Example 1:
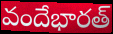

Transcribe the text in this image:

వందేభారత్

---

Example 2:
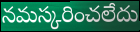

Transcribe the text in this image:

నమస్కరించలేదు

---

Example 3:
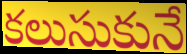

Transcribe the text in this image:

కలుసుకునే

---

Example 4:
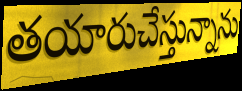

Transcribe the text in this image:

తయారుచేస్తున్నాను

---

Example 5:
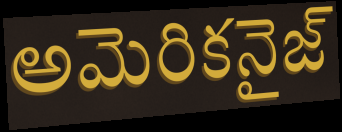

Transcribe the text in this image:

అమెరికనైజ్